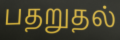
பதறுதல்